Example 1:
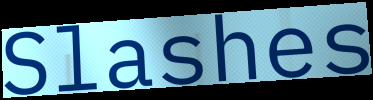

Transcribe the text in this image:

Slashes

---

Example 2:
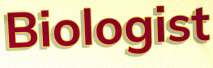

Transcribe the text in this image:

Biologist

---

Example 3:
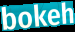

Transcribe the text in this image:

bokeh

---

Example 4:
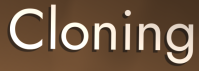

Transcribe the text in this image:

Cloning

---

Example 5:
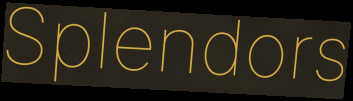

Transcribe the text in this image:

Splendors